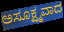
ಅಸೂಕ್ಷ್ಮವಾದ